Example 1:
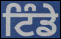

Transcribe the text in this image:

ਟਿੰਡੇ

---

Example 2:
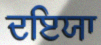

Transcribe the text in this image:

ਦਇਯਾ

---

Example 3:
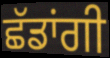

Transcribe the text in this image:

ਛੱਡਾਂਗੀ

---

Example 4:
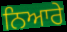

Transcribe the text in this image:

ਨਿਆਰੇ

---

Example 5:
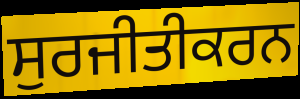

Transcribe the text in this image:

ਸੁਰਜੀਤੀਕਰਨ